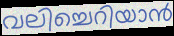
വലിച്ചെറിയാൻ